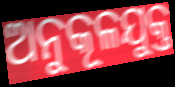
ଅନୁକୂଳଯୁକ୍ତ